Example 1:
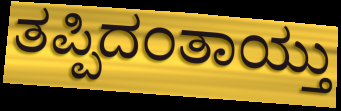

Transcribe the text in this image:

ತಪ್ಪಿದಂತಾಯ್ತು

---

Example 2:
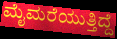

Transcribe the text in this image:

ಮೈಮರೆಯುತ್ತಿದ್ದೆ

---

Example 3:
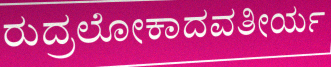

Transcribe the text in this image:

ರುದ್ರಲೋಕಾದವತೀರ್ಯ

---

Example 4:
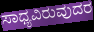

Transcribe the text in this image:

ಸಾಧ್ಯವಿರುವುದರ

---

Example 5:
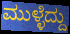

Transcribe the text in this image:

ಮುಳ್ಳೆದ್ದು